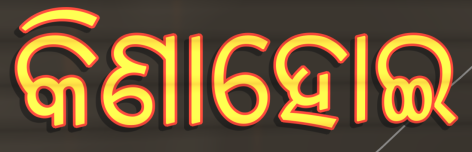
କିଣାହୋଇ